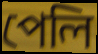
পেলি